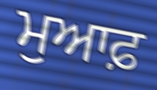
ਮੁਆਫ਼